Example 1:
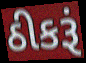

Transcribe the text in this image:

ઠીકરૂં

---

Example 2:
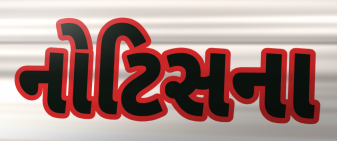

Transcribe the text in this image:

નોટિસના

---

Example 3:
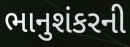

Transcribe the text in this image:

ભાનુશંકરની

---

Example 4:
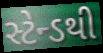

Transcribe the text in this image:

સ્ટેન્ડથી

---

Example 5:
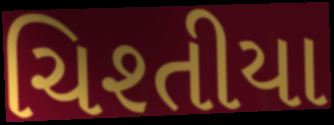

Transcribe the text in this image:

ચિશ્તીયા